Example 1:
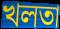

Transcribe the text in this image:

খলতা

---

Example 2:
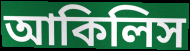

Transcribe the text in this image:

আকিলিস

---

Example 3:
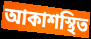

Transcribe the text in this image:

আকাশস্থিত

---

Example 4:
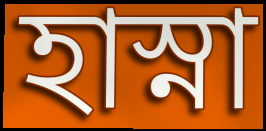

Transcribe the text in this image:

হাস্না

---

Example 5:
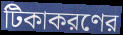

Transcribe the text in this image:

টিকাকরণের